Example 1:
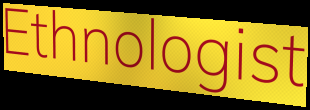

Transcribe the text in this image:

Ethnologist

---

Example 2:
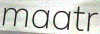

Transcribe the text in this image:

maatr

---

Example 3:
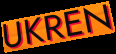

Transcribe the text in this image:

UKREN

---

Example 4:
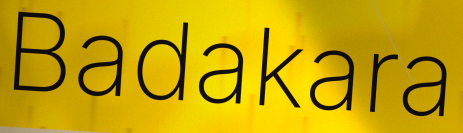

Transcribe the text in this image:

Badakara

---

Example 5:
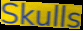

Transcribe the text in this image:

Skulls